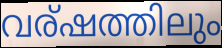
വര്ഷത്തിലും